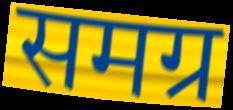
समग्र